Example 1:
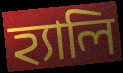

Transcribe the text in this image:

হ্যালি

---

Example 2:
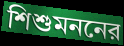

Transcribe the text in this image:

শিশুমননের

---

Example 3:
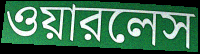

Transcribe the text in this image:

ওয়ারলেস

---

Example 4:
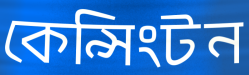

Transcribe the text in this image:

কেন্সিংটন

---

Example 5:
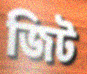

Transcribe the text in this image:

জিট